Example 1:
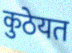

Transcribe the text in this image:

कुठेयत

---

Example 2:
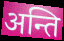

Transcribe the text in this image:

अन्ति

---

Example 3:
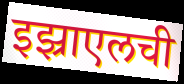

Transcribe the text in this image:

इझ्राएलची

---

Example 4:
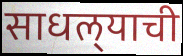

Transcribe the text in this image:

साधल्याची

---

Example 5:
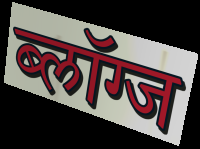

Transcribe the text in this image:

ब्लॉग्ज